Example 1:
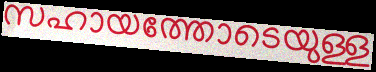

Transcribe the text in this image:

സഹായത്തോടെയുള്ള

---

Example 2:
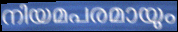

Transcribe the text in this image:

നിയമപരമായും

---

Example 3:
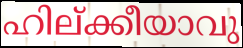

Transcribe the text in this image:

ഹില്ക്കീയാവു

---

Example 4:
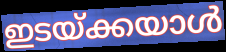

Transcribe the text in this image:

ഇടയ്ക്കയാൾ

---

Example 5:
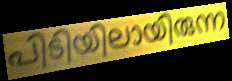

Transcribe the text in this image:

പിടിയിലായിരുന്ന